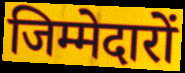
जिम्मेदारों